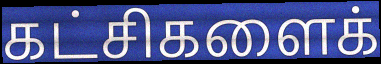
கட்சிகளைக்